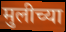
मुलीच्‍या